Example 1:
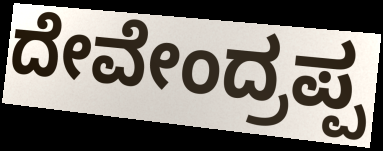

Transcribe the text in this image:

ದೇವೇಂದ್ರಪ್ಪ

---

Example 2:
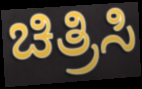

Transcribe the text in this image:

ಚಿತ್ರಿಸಿ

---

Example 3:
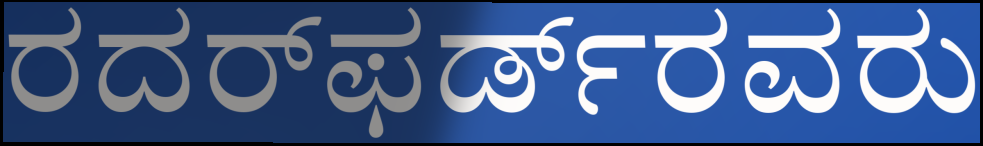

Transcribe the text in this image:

ರದರ್‌ಫರ್ಡ್‌ರವರು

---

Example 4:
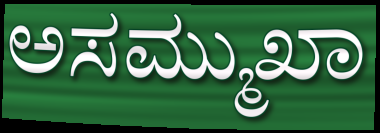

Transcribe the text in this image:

ಅಸಮ್ಮುಖಾ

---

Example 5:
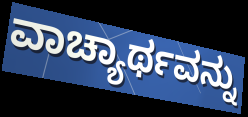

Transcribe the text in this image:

ವಾಚ್ಯಾರ್ಥವನ್ನು